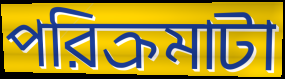
পরিক্রমাটা